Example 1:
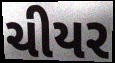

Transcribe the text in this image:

ચીયર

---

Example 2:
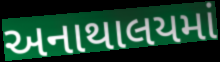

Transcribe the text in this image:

અનાથાલયમાં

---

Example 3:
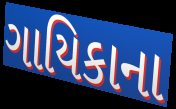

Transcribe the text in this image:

ગાયિકાના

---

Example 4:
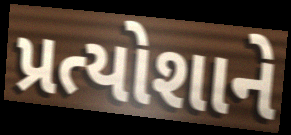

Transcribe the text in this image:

પ્રત્યોશાને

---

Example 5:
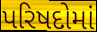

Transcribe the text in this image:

પરિષદોમાં